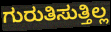
ಗುರುತಿಸುತ್ತಿಲ್ಲ